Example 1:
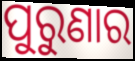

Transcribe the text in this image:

ପୁରୁଣାର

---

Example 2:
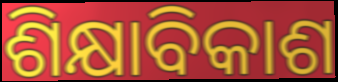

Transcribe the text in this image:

ଶିକ୍ଷାବିକାଶ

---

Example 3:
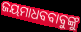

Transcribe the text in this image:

ଜୟମାଧବବାବୁଙ୍କୁ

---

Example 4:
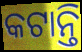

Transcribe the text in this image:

କଟାନ୍ତି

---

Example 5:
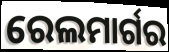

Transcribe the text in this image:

ରେଲମାର୍ଗର